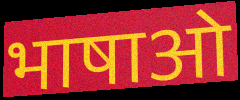
भाषाओ